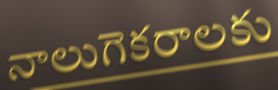
నాలుగెకరాలకు